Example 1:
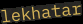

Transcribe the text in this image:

lekhatar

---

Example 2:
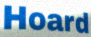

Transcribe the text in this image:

Hoard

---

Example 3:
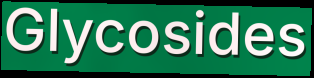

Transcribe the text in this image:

Glycosides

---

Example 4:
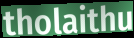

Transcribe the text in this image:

tholaithu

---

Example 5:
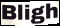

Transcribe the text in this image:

Bligh